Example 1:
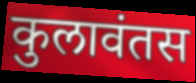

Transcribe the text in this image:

कुलावंतस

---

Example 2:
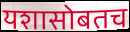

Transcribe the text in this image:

यशासोबतच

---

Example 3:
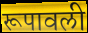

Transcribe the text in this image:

रूपावली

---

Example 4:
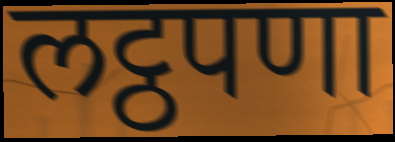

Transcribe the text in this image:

लट्ठपणा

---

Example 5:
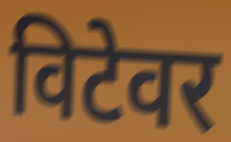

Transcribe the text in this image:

विटेवर